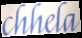
chhela